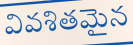
వివశితమైన